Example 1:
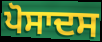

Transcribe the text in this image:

ਪੋਸਾਦਸ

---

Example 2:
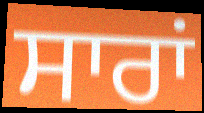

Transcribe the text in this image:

ਸਾਰਾਂ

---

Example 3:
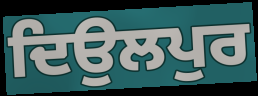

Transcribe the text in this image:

ਦਿਉਲਪੁਰ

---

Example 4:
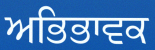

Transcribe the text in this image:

ਅਭਿਭਾਵਕ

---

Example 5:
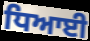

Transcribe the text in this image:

ਧਿਆਈ